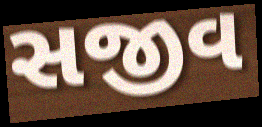
સજીવ